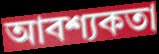
আবশ্যকতা